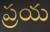
ప్రయ